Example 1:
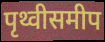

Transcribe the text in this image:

पृथ्वीसमीप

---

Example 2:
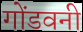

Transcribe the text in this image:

गोंडवनी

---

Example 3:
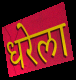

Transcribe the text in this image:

धरेला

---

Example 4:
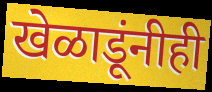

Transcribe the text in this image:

खेळाडूंनीही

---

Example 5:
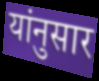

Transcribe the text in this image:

यांनुसार